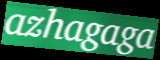
azhagaga